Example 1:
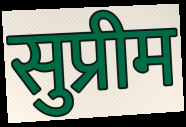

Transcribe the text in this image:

सुप्रीम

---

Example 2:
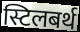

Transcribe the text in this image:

स्टिलबर्थ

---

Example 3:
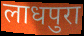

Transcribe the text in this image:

लाधपुरा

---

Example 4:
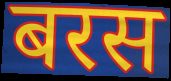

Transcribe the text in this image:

बरस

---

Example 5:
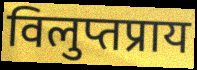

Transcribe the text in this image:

विलुप्तप्राय